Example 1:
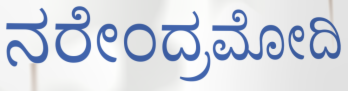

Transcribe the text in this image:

ನರೇಂದ್ರಮೋದಿ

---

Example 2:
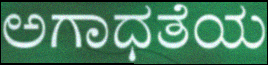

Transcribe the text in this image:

ಅಗಾಧತೆಯ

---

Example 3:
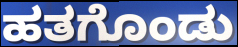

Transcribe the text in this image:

ಹತಗೊಂಡು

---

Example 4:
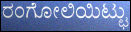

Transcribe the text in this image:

ರಂಗೋಲಿಯಿಟ್ಟು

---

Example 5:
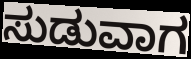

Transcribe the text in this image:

ಸುಡುವಾಗ